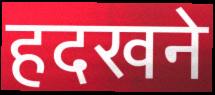
हदखने